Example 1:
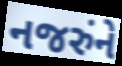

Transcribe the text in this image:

નજરુંને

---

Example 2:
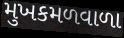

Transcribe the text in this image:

મુખકમળવાળા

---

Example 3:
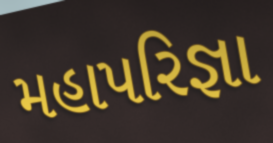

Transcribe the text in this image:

મહાપરિજ્ઞા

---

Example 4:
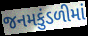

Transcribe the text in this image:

જનમકુંડળીમાં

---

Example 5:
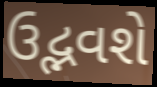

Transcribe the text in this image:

ઉદ્ભવશે